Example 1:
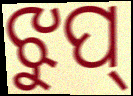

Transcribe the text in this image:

ଝୁପ୍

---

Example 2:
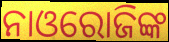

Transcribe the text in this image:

ନାଓରୋଜିଙ୍କ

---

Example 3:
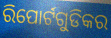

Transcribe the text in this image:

ରିପୋର୍ଟଗୁଡିକର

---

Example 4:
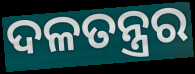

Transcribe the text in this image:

ଦଳତନ୍ତ୍ରର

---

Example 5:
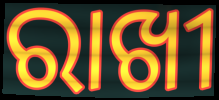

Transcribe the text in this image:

ରାଖୀ